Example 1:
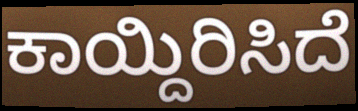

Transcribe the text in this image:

ಕಾಯ್ದಿರಿಸಿದೆ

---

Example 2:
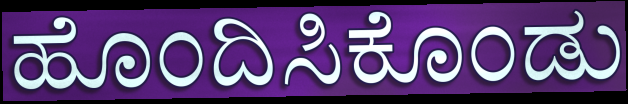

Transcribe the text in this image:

ಹೊಂದಿಸಿಕೊಂಡು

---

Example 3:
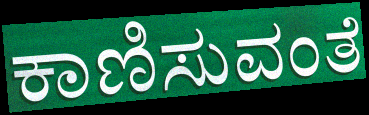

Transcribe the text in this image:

ಕಾಣಿಸುವಂತೆ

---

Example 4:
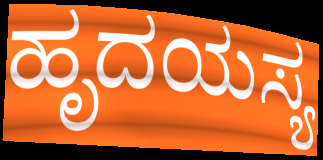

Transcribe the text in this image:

ಹೃದಯಸ್ಯ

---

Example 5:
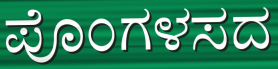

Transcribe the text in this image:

ಪೊಂಗಳಸದ